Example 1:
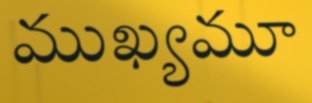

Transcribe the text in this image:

ముఖ్యమూ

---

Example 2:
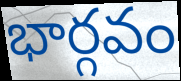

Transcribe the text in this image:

భార్గవం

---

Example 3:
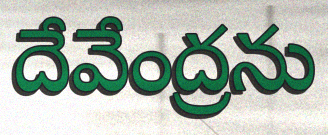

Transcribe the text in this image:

దేవేంద్రను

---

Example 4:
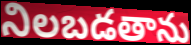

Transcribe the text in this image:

నిలబడతాను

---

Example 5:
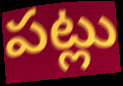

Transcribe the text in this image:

పట్లు